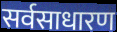
सर्वसाधारण